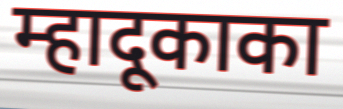
म्हादूकाका